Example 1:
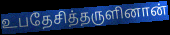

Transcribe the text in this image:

உபதேசித்தருளினான்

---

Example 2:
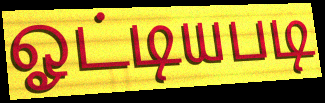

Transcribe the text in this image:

ஓட்டியபடி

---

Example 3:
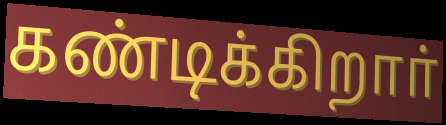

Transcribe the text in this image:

கண்டிக்கிறார்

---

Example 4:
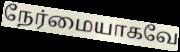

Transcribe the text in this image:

நேர்மையாகவே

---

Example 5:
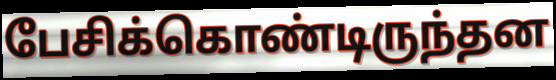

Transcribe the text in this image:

பேசிக்கொண்டிருந்தன